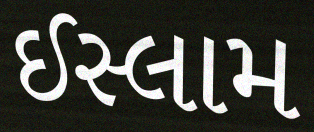
ઈસ્લામ